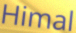
Himal